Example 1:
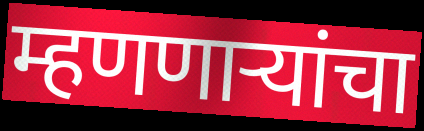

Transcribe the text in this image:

म्हणणाऱ्यांचा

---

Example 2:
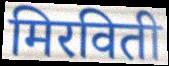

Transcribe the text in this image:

मिरविती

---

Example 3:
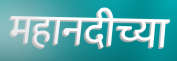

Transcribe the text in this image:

महानदीच्या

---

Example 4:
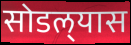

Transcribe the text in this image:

सोडल्यास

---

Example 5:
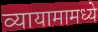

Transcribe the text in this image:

व्यायामामध्ये